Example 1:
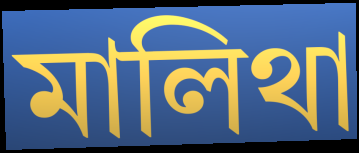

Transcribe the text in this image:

মালিথা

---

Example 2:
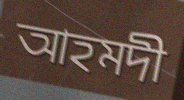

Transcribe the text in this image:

আহমদী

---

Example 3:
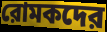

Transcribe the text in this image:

রোমকদের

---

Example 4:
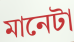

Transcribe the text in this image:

মানেটা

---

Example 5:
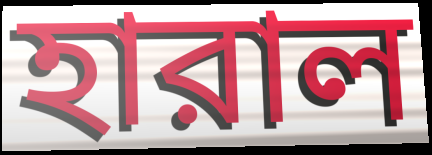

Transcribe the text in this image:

হারাল